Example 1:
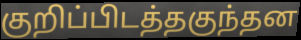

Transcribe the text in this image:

குறிப்பிடத்தகுந்தன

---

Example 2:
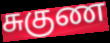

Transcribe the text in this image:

சுகுண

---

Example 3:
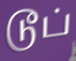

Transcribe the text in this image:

டூப்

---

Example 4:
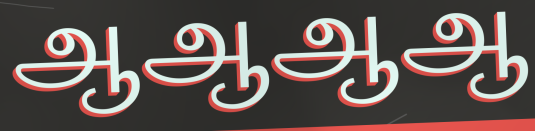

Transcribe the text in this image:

ஆஆஆஆ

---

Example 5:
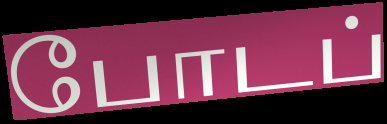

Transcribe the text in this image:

போடப்